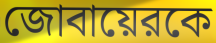
জোবায়েরকে